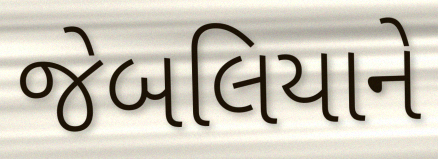
જેબલિયાને